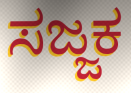
ಸಜ್ಜಕ